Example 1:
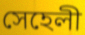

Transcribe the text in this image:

সেহেলী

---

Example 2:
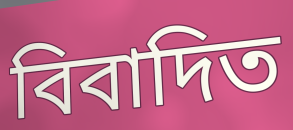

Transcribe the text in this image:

বিবাদিত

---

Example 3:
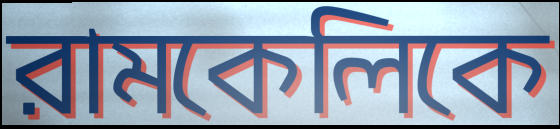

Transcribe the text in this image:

রামকেলিকে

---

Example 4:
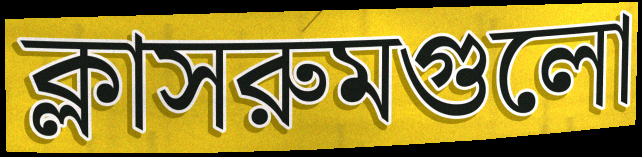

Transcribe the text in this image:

ক্লাসরুমগুলো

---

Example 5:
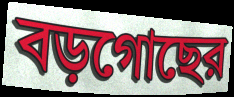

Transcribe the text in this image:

বড়গোছের